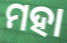
ମହା